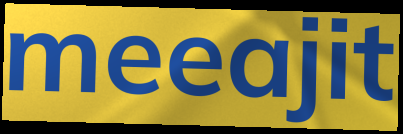
meeajit